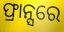
ଫ୍ରାନ୍ସରେ